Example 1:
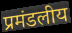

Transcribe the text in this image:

प्रमंडलीय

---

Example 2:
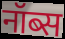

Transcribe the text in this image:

नॉब्स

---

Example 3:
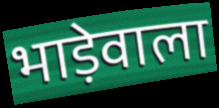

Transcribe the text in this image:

भाड़ेवाला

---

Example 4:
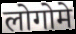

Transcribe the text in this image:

लोगोमे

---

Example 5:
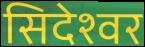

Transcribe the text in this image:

सिदेश्वर